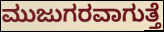
ಮುಜುಗರವಾಗುತ್ತೆ